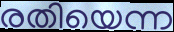
രതിയെന്ന